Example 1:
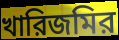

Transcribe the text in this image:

খারিজমির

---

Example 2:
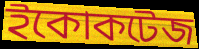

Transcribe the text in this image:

ইকোকটেজ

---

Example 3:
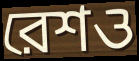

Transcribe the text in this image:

রেশও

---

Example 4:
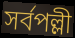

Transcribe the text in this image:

সর্বপল্লী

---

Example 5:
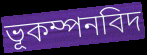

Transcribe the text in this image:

ভূকম্পনবিদ